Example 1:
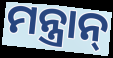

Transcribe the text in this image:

ମନ୍ତ୍ରାନ୍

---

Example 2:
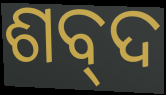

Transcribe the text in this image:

ଶବ୍‍ଦ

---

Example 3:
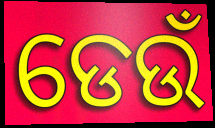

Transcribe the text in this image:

ଡେଉଁ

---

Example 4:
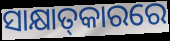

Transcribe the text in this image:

ସାକ୍ଷାତ୍‌କାରରେ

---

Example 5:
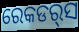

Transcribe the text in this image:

ରେକଡର୍‌ସ